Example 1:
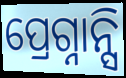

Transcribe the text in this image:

ପ୍ରେଗ୍ନାନ୍ସି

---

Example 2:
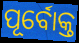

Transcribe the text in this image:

ପୂର୍ବୋକ୍ତ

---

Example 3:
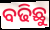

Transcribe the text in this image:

ବଢିଛୁ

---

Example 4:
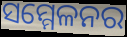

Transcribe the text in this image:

ସମ୍ମେଳନର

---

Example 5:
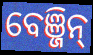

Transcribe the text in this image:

ବେଞ୍ଜିନ୍